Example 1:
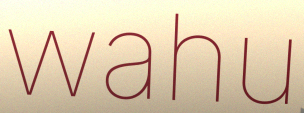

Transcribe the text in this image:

wahu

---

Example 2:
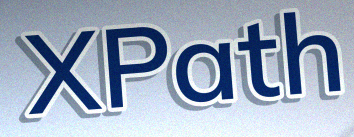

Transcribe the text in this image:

XPath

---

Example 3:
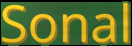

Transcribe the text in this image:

Sonal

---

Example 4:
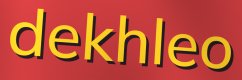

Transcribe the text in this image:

dekhleo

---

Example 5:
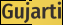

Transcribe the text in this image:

Gujarti